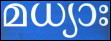
മധ്യാഃ